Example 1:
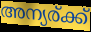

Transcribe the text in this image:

അന്യര്ക്ക്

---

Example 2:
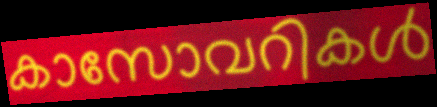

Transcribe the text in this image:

കാസോവറികൾ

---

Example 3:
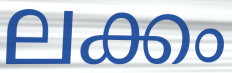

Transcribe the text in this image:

ലക്കം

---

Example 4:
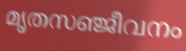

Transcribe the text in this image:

മൃതസഞ്ജീവനം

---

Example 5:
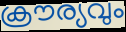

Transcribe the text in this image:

ക്രൗര്യവും